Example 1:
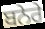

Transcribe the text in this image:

ਬਨੇਰੇ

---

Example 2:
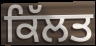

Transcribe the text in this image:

ਕਿੱਲਤ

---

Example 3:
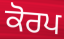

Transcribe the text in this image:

ਕੋਰਪ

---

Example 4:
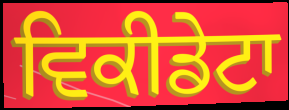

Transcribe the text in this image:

ਵਿਕੀਡੇਟਾ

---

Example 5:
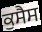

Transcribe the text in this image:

ਕੁਸੈਸ